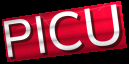
PICU